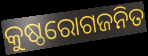
କୁଷ୍ଠରୋଗଜନିତ